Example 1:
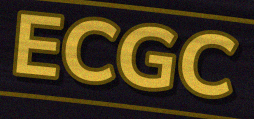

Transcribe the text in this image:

ECGC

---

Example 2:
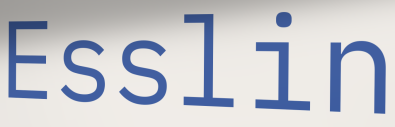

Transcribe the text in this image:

Esslin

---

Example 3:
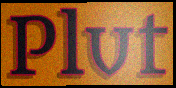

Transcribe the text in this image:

Plut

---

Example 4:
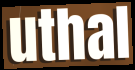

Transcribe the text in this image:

uthal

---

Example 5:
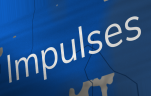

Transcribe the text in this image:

Impulses